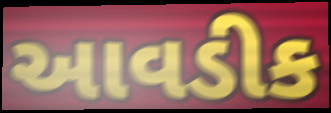
આવડીક